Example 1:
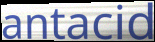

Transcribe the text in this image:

antacid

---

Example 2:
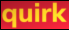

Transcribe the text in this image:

quirk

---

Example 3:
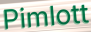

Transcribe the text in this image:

Pimlott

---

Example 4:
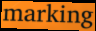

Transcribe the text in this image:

marking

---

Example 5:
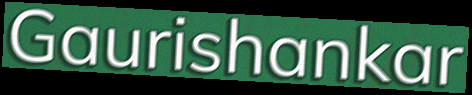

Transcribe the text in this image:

Gaurishankar